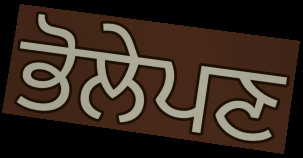
ਭੋਲੇਪਣ